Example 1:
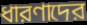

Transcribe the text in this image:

ধারণাদের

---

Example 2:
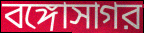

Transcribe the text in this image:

বঙ্গোসাগর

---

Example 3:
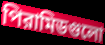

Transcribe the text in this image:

পিরামিডগুলো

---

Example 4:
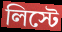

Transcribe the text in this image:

লিস্টে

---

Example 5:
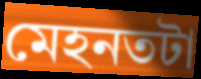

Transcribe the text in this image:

মেহনতটা